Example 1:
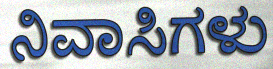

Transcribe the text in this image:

ನಿವಾಸಿಗಳು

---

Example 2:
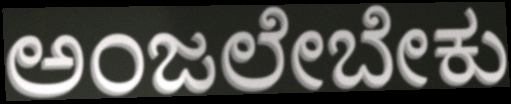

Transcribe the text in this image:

ಅಂಜಲೇಬೇಕು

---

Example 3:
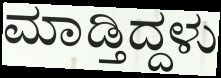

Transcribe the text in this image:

ಮಾಡ್ತಿದ್ದಳು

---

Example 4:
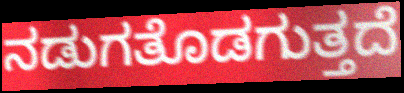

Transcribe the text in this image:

ನಡುಗತೊಡಗುತ್ತದೆ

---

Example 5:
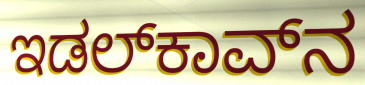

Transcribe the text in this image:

ಇಡಲ್‌ಕಾವ್‌ನ